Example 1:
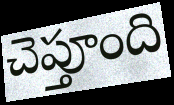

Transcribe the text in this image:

చెప్తూంది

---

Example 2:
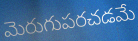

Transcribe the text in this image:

మెరుగుపరచడమే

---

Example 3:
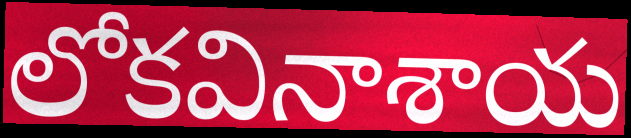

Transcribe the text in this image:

లోకవినాశాయ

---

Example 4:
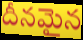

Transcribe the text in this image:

దీనమైన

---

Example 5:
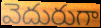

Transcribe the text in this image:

వెదురుగా